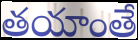
తయాంతే